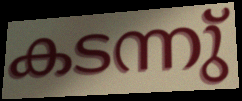
കടന്നു്